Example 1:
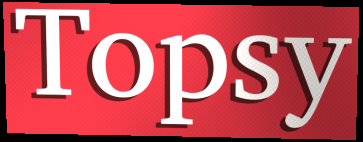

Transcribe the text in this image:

Topsy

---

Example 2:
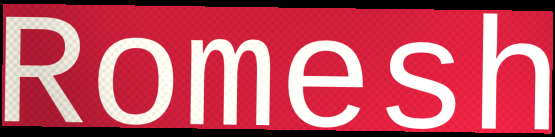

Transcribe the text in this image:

Romesh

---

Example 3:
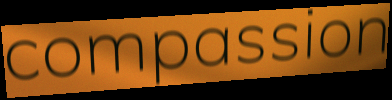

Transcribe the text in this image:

compassion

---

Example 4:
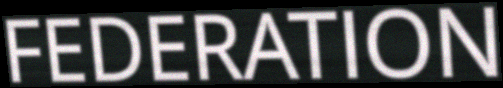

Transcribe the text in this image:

FEDERATION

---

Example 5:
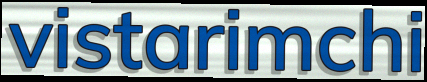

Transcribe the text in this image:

vistarimchi